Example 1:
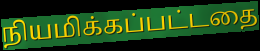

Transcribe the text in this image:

நியமிக்கப்பட்டதை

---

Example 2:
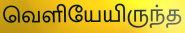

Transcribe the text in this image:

வெளியேயிருந்த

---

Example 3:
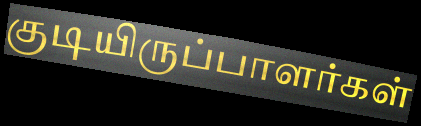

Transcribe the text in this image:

குடியிருப்பாளர்கள்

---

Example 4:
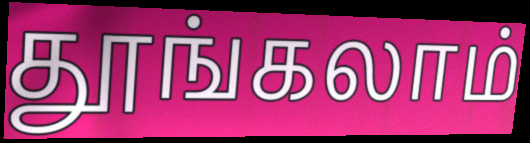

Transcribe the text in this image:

தூங்கலாம்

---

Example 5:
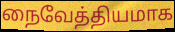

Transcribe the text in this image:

நைவேத்தியமாக